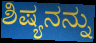
ಶಿಷ್ಯನನ್ನು